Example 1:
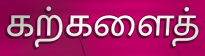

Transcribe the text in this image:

கற்களைத்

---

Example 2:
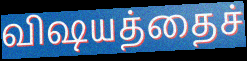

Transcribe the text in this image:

விஷயத்தைச்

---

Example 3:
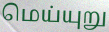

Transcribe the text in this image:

மெய்யுறு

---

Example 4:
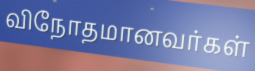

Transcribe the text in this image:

விநோதமானவர்கள்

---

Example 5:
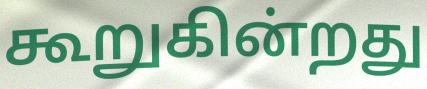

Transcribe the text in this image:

கூறுகின்றது